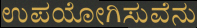
ಉಪಯೋಗಿಸುವೆನು